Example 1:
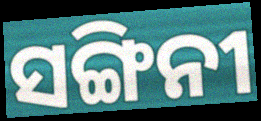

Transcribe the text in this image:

ସଙ୍ଗିନୀ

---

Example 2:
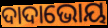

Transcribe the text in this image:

ଦାଦାଭୋୟ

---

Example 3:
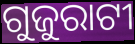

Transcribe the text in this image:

ଗୁଜୁରାଟୀ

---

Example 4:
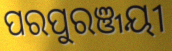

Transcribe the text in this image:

ପରପୁରଞ୍ଜୟୀ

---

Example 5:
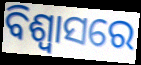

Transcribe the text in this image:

ବିଶ୍ବାସରେ